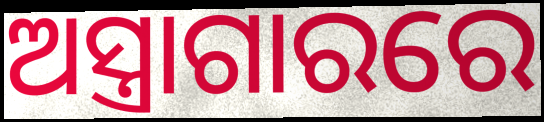
ଅସ୍ତ୍ରାଗାରରେ